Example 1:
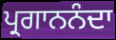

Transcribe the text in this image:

ਪ੍ਰਗਾਨਨੰਦਾ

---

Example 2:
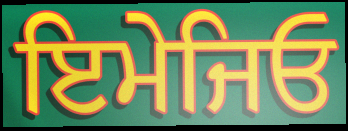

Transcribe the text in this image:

ਇਮੇਜਿਓ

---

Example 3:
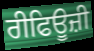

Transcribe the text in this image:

ਰੀਫਿਊਜ਼ੀ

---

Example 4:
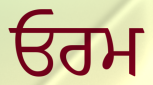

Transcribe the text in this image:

ਓਰਮ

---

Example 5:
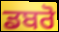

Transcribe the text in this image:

ਡਬਰੋ